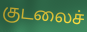
குடலைச்